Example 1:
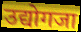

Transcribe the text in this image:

उद्योगजा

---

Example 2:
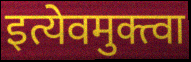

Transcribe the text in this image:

इत्येवमुक्त्वा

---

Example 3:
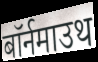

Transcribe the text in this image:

बॉर्नमाउथ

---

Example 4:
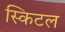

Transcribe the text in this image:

स्किटल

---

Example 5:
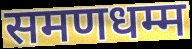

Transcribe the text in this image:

समणधम्म